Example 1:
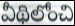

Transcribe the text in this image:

వీథిలోంచి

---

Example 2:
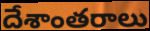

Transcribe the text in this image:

దేశాంతరాలు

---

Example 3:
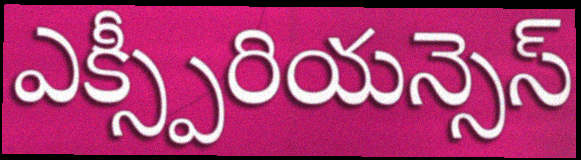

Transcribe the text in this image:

ఎక్స్పీరియన్సెస్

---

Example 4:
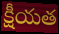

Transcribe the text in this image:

క్షీయత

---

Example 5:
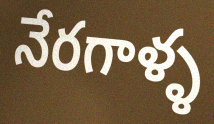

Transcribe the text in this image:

నేరగాళ్ళ